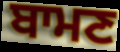
ਬਾਮਣ